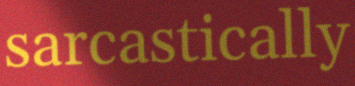
sarcastically